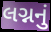
લગ્નનું